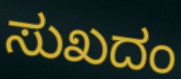
ಸುಖದಂ